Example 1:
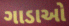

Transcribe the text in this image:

ગાડાઓ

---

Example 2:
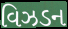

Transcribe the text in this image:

વિઝડન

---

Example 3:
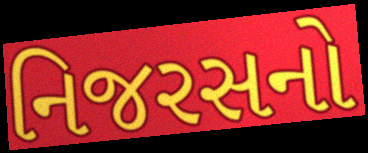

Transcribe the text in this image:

નિજરસનો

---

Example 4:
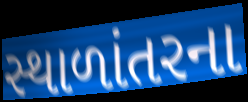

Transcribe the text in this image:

સ્થાળાંતરના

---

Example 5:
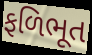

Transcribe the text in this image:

ફળિભૂત